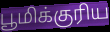
பூமிக்குரிய